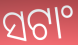
ସଟାଂ